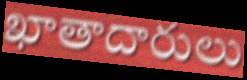
ఖాతాదారులు